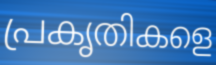
പ്രകൃതികളെ